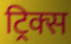
ट्रिक्‍स